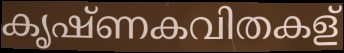
കൃഷ്ണകവിതകള്